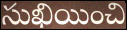
సుఖియించి